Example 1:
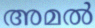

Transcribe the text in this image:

അമൽ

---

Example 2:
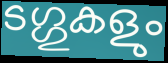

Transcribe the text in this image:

ടഗ്ഗുകളും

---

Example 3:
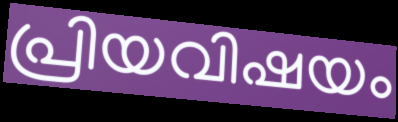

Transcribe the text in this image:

പ്രിയവിഷയം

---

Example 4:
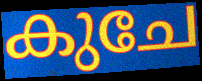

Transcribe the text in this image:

കുചേ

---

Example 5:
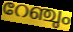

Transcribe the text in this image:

റേഞ്ചും